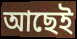
আছেই